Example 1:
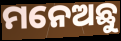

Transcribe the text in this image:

ମନେଅଛୁ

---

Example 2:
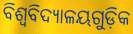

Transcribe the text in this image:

ବିଶ୍ଵବିଦ୍ୟାଳୟଗୁଡ଼ିକ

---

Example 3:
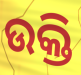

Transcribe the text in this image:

ଉକ୍ତି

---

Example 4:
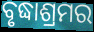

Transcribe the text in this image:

ବୃଦ୍ଧାଶ୍ରମର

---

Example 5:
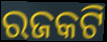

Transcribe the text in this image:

ରଜକଟି